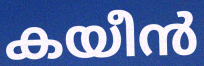
കയീൻ